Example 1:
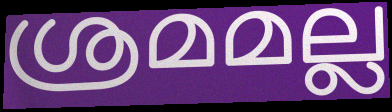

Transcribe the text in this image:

ശ്രമമല്ല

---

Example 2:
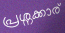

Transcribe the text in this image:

പ്രശ്നക്കാര്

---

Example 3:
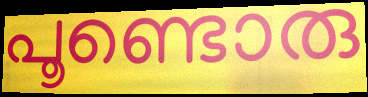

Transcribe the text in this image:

പൂണ്ടൊരു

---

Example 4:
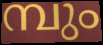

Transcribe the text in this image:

മ്പും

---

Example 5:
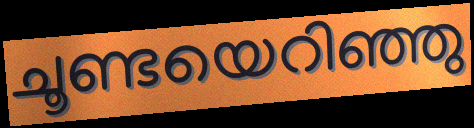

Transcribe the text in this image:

ചൂണ്ടയെറിഞ്ഞു